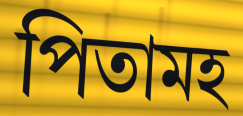
পিতামহ